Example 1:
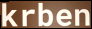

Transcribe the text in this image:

krben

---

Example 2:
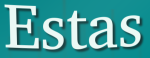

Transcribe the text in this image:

Estas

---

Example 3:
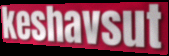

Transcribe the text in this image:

keshavsut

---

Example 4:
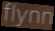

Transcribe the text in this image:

flynn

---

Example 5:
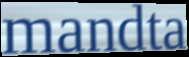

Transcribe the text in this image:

mandta